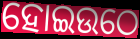
ହୋଇଉଠେ